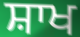
ਸ਼ਾਖ